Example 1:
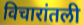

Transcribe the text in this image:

विचारांतली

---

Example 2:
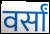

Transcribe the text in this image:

वर्सां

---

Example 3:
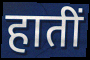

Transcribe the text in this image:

हातीं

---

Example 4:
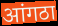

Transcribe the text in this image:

आंगठा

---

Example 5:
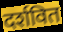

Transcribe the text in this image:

दर्शवित